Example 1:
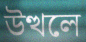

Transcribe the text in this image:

উত্থলে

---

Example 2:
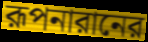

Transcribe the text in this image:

রূপনারানের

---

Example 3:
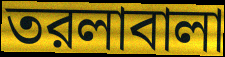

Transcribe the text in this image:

তরলাবালা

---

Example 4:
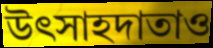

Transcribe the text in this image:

উৎসাহদাতাও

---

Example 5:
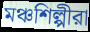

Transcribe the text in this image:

মঞ্চশিল্পীরা